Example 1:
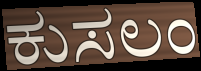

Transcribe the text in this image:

ಕುಸಲಂ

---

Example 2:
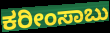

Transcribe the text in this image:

ಕರೀಂಸಾಬು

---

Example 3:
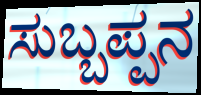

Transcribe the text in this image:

ಸುಬ್ಬಪ್ಪನ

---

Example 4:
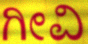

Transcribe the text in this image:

ಗೀವಿ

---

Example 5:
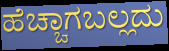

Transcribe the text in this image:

ಹೆಚ್ಚಾಗಬಲ್ಲದು